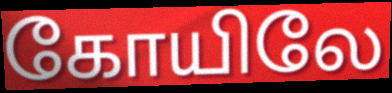
கோயிலே